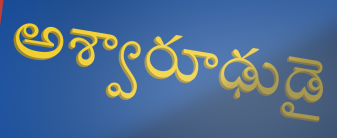
అశ్వారూఢుడై